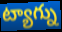
ట్యాగ్ను